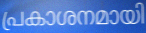
പ്രകാശനമായി